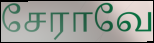
சேராவே